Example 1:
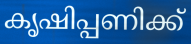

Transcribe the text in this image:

കൃഷിപ്പണിക്ക്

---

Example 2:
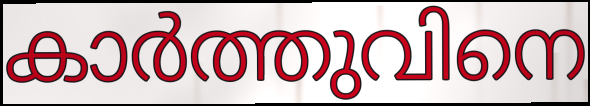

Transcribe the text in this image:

കാർത്തുവിനെ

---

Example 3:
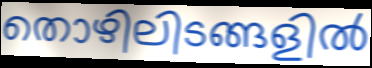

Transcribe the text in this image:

തൊഴിലിടങ്ങളിൽ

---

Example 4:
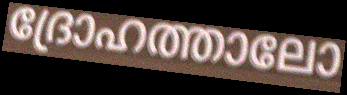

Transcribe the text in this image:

ദ്രോഹത്താലോ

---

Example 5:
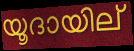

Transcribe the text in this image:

യൂദായില്